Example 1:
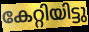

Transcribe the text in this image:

കേറ്റിയിട്ടു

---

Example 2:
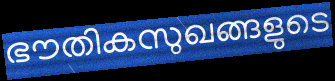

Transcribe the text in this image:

ഭൗതികസുഖങ്ങളുടെ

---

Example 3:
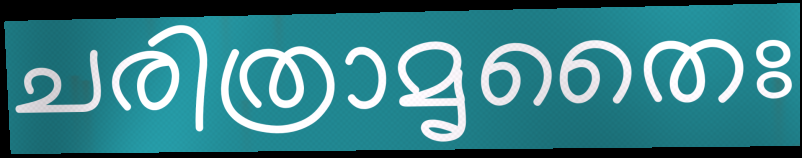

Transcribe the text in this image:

ചരിത്രാമൃതൈഃ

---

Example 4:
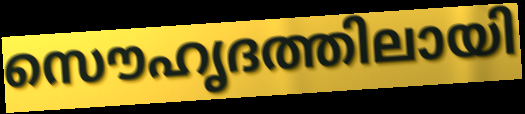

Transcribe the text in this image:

സൌഹൃദത്തിലായി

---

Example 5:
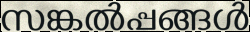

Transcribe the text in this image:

സങ്കൽപ്പങ്ങൾ